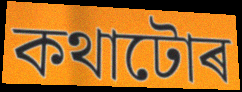
কথাটোৰ